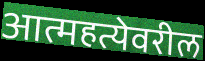
आत्महत्येवरील